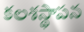
కలశస్థాపన